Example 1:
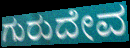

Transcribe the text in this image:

ಗುರುದೇವ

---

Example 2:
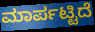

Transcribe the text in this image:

ಮಾರ್ಪಟ್ಟಿದೆ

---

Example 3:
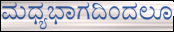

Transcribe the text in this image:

ಮಧ್ಯಭಾಗದಿಂದಲೂ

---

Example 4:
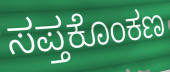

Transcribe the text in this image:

ಸಪ್ತಕೊಂಕಣ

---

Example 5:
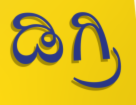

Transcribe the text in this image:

ಡಿಗ್ರಿ